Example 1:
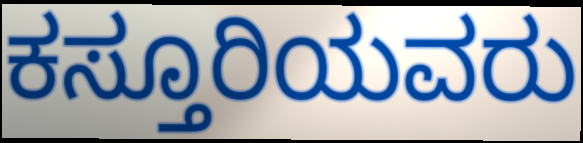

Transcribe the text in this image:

ಕಸ್ತೂರಿಯವರು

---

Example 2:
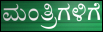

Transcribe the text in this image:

ಮಂತ್ರಿಗಳಿಗೆ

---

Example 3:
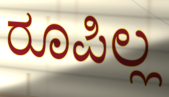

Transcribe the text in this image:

ರೂಪಿಲ್ಲ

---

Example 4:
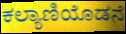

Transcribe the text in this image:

ಕಲ್ಯಾಣಿಯೊಡನೆ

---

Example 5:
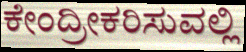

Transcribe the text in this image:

ಕೇಂದ್ರೀಕರಿಸುವಲ್ಲಿ